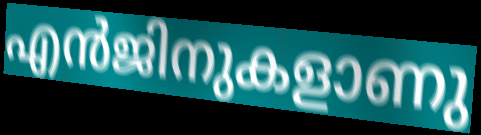
എൻജിനുകളാണു